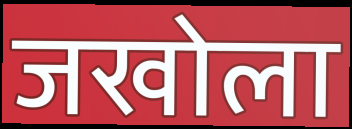
जखोला